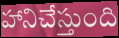
హానిచేస్తుంది